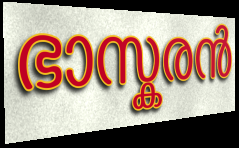
ഭാസ്കരൻ